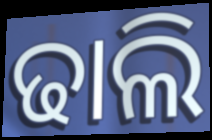
ଢାଲି